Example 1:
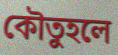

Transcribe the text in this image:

কৌতুহলে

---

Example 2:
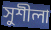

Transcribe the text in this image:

সুশীলা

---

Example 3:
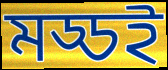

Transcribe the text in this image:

মড্ডই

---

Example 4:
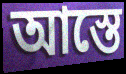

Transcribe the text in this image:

আস্তে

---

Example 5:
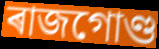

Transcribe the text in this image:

ৰাজগোণ্ড